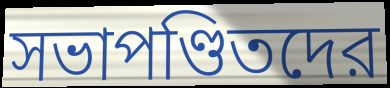
সভাপণ্ডিতদের